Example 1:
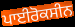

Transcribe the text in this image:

ਪਾਈਰੋਕਸੀਨ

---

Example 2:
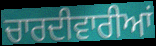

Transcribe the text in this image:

ਚਾਰਦੀਵਾਰੀਆਂ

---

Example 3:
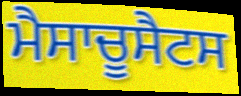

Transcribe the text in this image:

ਮੈਸਾਚੂਸੈਟਸ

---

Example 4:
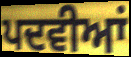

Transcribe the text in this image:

ਪਦਵੀਆਂ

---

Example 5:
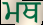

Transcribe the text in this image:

ਮਥ